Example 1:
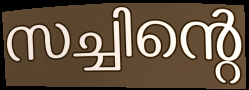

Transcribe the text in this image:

സച്ചിന്റെ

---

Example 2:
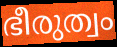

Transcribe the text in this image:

ഭീരുത്വം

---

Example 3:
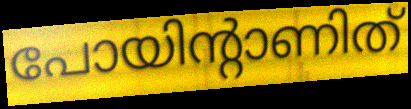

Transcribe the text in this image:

പോയിന്റാണിത്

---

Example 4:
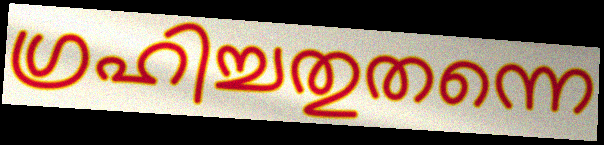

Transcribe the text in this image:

ഗ്രഹിച്ചതുതന്നെ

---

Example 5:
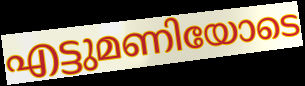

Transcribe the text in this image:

എട്ടുമണിയോടെ